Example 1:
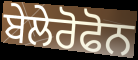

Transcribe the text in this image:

ਬੇਲੇਰੋਫੋਨ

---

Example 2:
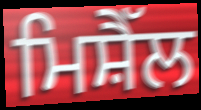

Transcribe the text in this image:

ਮਿਸ਼ੈੱਲ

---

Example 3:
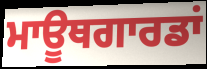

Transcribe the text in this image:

ਮਾਊਥਗਾਰਡਾਂ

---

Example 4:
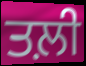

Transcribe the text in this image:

ਤਲ਼ੀ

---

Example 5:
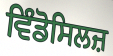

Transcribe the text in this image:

ਵਿੰਡੋਸਿਲਜ਼